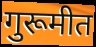
गुरूमीत